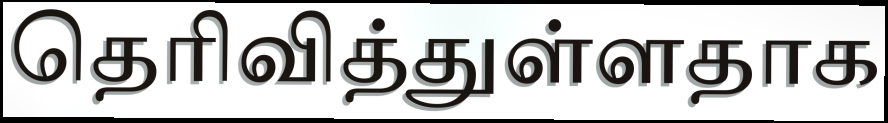
தெரிவித்துள்ளதாக